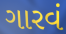
ગારવં